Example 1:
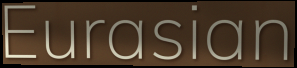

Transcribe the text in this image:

Eurasian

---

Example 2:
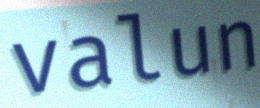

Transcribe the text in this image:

valun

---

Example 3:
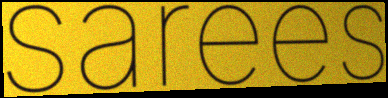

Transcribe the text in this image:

sarees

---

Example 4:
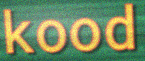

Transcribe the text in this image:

kood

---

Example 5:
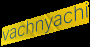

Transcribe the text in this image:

vachnyachi